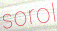
sorol